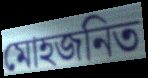
মোহজনিত